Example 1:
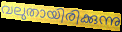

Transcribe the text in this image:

വലുതായിരിക്കുന്നു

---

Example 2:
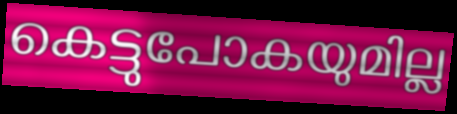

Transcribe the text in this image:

കെട്ടുപോകയുമില്ല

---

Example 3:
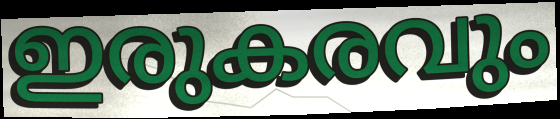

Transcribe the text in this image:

ഇരുകരവും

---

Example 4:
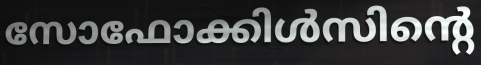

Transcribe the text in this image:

സോഫോക്കിൾസിന്റെ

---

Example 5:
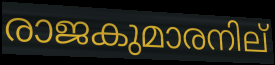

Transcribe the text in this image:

രാജകുമാരനില്